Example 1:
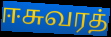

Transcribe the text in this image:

ஈசுவரத்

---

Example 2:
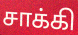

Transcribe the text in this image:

சாக்கி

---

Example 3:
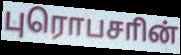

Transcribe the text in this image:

புரொபசரின்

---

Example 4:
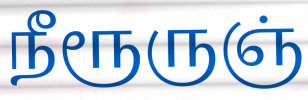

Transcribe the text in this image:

நீரூருஞ்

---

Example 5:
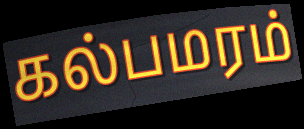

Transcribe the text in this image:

கல்பமரம்